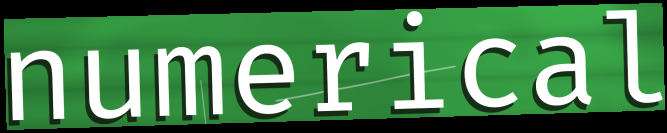
numerical